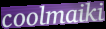
coolmaiki